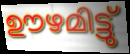
ഊഴമിട്ടു്